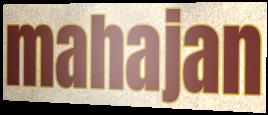
mahajan